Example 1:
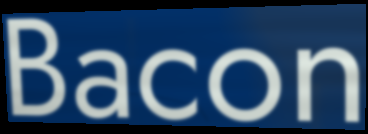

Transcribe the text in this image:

Bacon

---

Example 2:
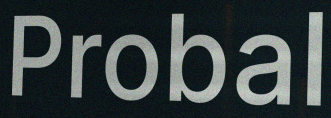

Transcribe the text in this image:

Probal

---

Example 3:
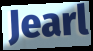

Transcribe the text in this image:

Jearl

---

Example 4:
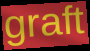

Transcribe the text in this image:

graft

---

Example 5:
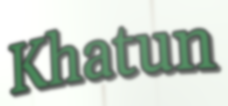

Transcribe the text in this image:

Khatun